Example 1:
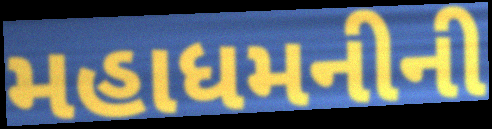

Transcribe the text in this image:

મહાધમનીની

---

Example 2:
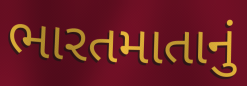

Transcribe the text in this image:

ભારતમાતાનું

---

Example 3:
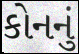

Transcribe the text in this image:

કોનનું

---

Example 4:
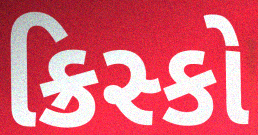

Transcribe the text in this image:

ક્રિસ્કો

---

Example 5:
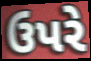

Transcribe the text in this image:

ઉપરે